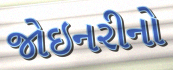
જોઇનરીનો